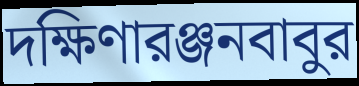
দক্ষিণারঞ্জনবাবুর